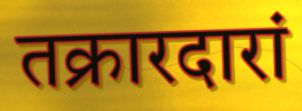
तक्रारदारां